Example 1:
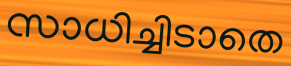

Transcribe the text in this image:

സാധിച്ചിടാതെ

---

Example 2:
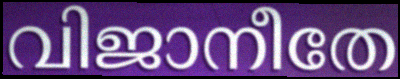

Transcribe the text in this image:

വിജാനീതേ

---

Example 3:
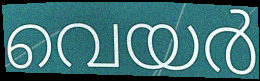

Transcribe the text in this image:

വെയർ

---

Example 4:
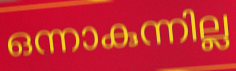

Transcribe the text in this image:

ഒന്നാകുന്നില്ല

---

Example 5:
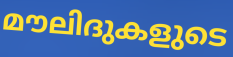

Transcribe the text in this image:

മൗലിദുകളുടെ